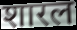
शारल